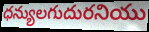
ధన్యులగుదురనియు